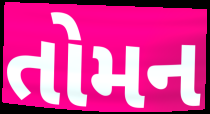
તોમન